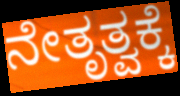
ನೇತೃತ್ವಕ್ಕೆ